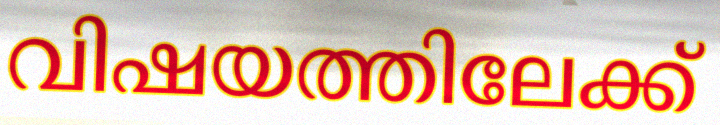
വിഷയത്തിലേക്ക്